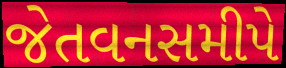
જેતવનસમીપે